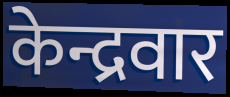
केन्द्रवार